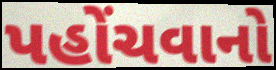
પહોંચવાનો